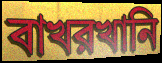
বাখরখানি